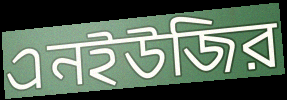
এনইউজির